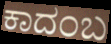
ಕಾದಂಬ